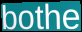
bothe